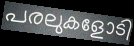
പരലുകളോടി